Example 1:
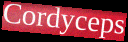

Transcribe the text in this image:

Cordyceps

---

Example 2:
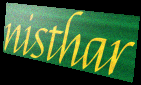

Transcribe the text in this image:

nisthar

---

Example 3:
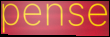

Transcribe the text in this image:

pense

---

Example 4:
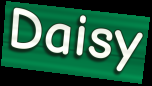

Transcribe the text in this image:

Daisy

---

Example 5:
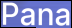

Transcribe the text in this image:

Pana